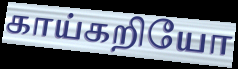
காய்கறியோ